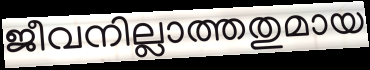
ജീവനില്ലാത്തതുമായ